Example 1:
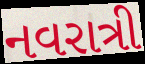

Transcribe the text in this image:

નવરાત્રી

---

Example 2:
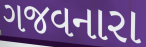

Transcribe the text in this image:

ગજવનારા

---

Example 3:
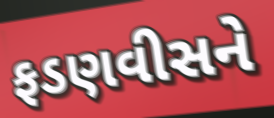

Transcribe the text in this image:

ફડણવીસને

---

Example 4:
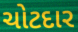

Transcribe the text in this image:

ચોટદાર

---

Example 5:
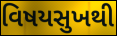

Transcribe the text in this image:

વિષયસુખથી